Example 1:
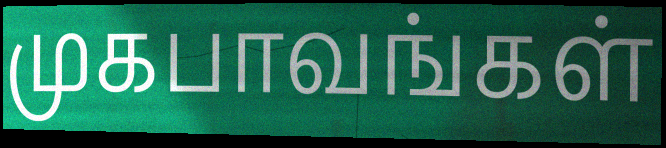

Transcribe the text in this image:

முகபாவங்கள்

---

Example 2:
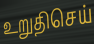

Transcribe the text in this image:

உறுதிசெய்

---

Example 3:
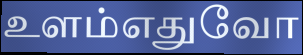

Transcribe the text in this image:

உளம்எதுவோ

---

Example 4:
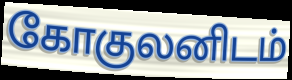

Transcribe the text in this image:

கோகுலனிடம்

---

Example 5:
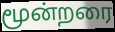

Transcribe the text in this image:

மூன்றரை